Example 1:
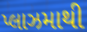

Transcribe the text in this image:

પ્લાઝમાથી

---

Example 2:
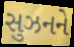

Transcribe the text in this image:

સુઝનને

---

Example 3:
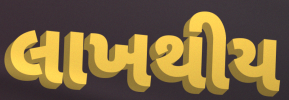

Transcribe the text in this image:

લાખથીય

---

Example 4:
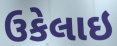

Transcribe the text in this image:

ઉકેલાઇ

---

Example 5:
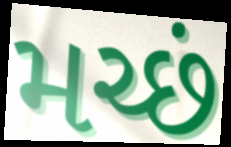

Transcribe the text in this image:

મચ્છં